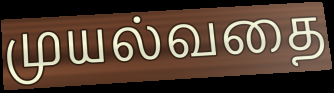
முயல்வதை